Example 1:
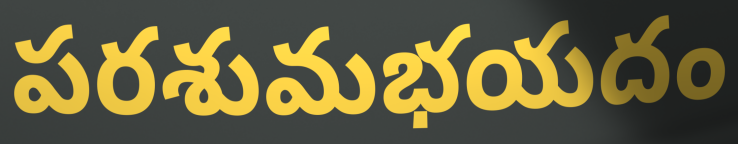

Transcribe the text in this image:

పరశుమభయదం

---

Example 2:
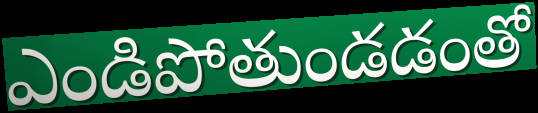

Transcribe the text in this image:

ఎండిపోతుండడంతో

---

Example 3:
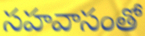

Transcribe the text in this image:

సహవాసంతో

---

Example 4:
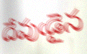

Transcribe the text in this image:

దేవుఁడైన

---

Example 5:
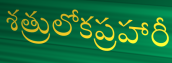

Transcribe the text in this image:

శత్రులోకప్రహారీ